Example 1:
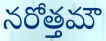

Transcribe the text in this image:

నరోత్తమౌ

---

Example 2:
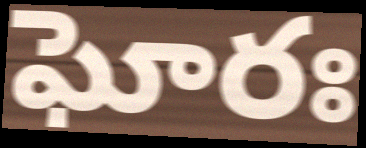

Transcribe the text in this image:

ఘోరః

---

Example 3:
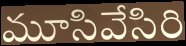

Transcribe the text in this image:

మూసివేసిరి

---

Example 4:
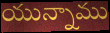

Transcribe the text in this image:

యున్నాము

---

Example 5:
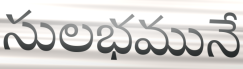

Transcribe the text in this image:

సులభమునే